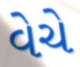
વેચે